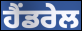
ਹੈਂਡਰੇਲ